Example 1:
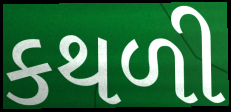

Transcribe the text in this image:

કથળી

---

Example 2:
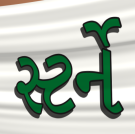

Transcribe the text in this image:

સ્ટર્ને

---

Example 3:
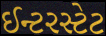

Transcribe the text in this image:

ઈન્ટરસ્ટેટ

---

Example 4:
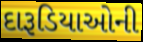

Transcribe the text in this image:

દારૂડિયાઓની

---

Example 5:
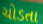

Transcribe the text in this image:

ચોડતા